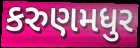
કરુણમધુર